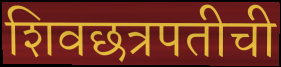
शिवछत्रपतीची